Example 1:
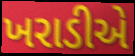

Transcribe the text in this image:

ખરાડીએ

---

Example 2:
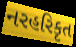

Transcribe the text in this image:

નરહરિકૃત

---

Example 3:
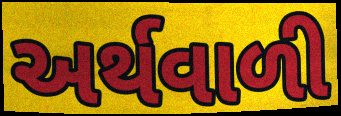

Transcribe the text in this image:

અર્થવાળી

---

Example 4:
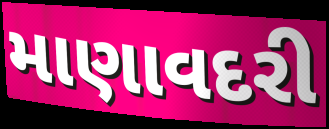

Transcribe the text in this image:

માણાવદરી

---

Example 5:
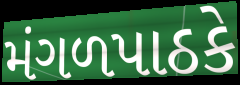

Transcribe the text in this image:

મંગળપાઠકે